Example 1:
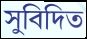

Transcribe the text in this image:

সুবিদিত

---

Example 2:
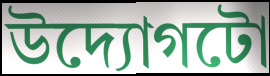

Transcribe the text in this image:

উদ্যোগটো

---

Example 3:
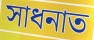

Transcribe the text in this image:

সাধনাত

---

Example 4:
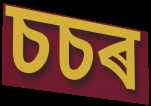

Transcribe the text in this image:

চচৰ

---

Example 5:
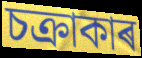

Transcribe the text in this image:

চক্ৰাকাৰ